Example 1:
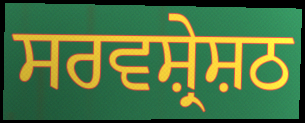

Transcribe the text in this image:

ਸਰਵਸ਼੍ਰੇਸ਼ਠ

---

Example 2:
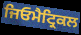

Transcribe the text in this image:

ਜਿਓਮੈਟ੍ਰਿਕਲ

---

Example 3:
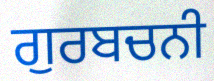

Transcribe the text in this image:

ਗੁਰਬਚਨੀ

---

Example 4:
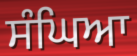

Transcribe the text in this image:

ਸੰਘਿਆ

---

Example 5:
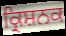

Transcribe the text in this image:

ਕ੍ਰਿਸ਼ਨਕ